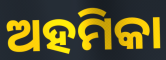
ଅହମିକା